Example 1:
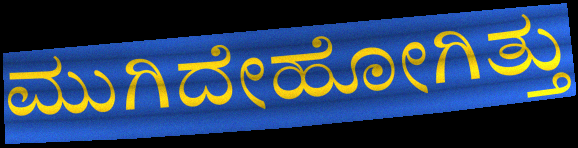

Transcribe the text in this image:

ಮುಗಿದೇಹೋಗಿತ್ತು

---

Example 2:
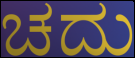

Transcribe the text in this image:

ಚದು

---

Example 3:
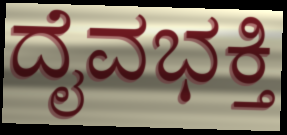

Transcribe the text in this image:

ದೈವಭಕ್ತಿ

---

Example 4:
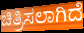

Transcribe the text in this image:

ಚಿತ್ರಿಸಲಾಗಿದೆ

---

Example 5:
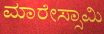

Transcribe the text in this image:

ಮಾರೇಸ್ಸಾಮಿ